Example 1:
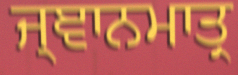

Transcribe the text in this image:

ਜ੍ਞਾਨਮਾਤ੍ਰ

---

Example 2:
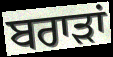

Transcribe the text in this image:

ਬਰਾੜਾਂ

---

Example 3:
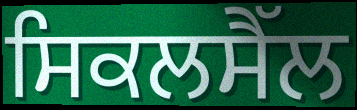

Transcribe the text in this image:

ਸਿਕਲਸੈੱਲ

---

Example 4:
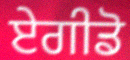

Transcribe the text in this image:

ਏਗੀਡੋ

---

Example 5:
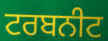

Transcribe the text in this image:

ਟਰਬਨੀਟ